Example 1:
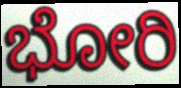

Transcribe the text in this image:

ಭೋರಿ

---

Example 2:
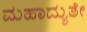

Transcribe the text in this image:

ಮಹಾದ್ಯುತೇ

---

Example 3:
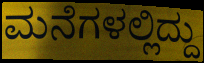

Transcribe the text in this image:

ಮನೆಗಳಲ್ಲಿದ್ದು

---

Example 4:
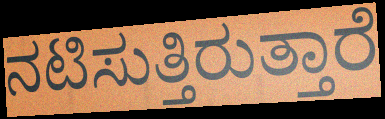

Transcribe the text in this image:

ನಟಿಸುತ್ತಿರುತ್ತಾರೆ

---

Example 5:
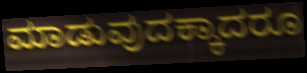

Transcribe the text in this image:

ಮಾಡುವುದಕ್ಕಾದರೂ